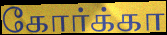
கோர்க்கா